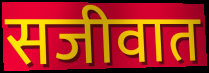
सजीवात